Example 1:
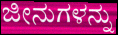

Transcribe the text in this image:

ಜೀನುಗಳನ್ನು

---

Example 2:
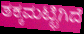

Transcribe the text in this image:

ತಕ್ಕಮಟ್ಟಿಗಿದೆ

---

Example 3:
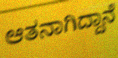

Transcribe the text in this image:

ಆತನಾಗಿದ್ದಾನೆ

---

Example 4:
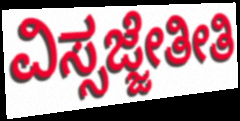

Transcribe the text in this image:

ವಿಸ್ಸಜ್ಜೇತೀತಿ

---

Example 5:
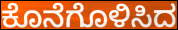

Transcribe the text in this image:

ಕೊನೆಗೊಳಿಸಿದ